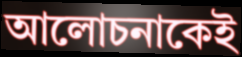
আলোচনাকেই